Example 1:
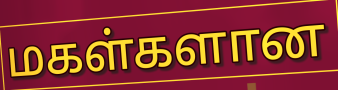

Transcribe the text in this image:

மகள்களான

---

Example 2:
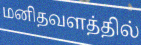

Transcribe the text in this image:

மனிதவளத்தில்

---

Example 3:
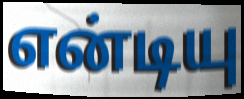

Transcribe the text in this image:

என்டியு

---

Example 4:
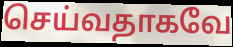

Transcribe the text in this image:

செய்வதாகவே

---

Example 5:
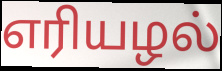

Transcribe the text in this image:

எரியழல்